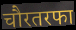
चौरतरफा